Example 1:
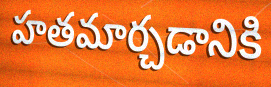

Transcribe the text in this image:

హతమార్చడానికి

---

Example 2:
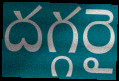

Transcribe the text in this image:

దగ్గరై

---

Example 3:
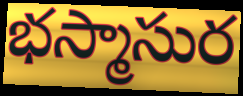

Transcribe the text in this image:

భస్మాసుర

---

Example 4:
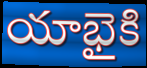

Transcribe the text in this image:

యాభైకి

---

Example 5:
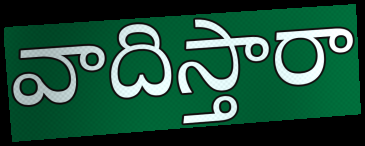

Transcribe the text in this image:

వాదిస్తారా